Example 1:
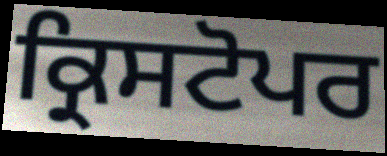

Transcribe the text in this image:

ਕ੍ਰਿਸਟੋਪਰ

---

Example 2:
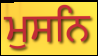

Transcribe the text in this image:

ਮੁਸਨਿ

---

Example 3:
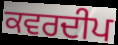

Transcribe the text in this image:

ਕਵਰਦੀਪ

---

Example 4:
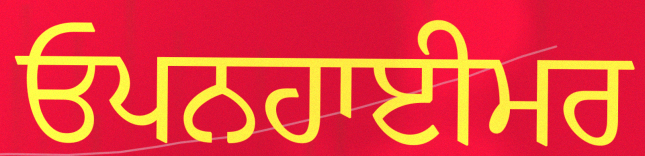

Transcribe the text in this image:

ਓਪਨਹਾਈਮਰ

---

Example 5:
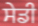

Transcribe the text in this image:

ਸੇਡੀ